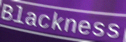
Blackness